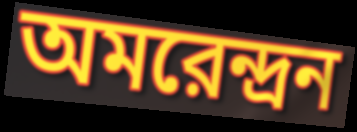
অমরেন্দ্রন